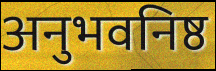
अनुभवनिष्ठ